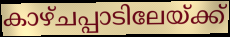
കാഴ്ചപ്പാടിലേയ്ക്ക്